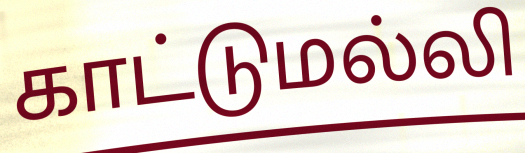
காட்டுமல்லி